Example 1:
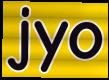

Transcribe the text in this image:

jyo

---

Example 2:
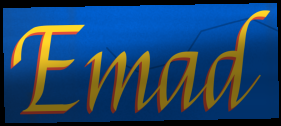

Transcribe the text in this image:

Emad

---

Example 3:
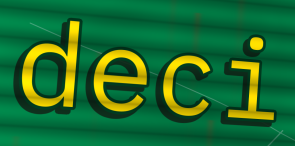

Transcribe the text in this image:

deci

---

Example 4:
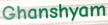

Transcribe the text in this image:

Ghanshyam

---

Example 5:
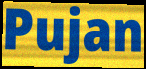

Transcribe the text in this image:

Pujan